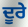
ਦੂਰੇ